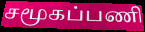
சமூகப்பணி